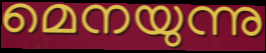
മെനയുന്നു